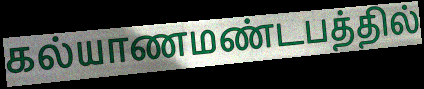
கல்யாணமண்டபத்தில்